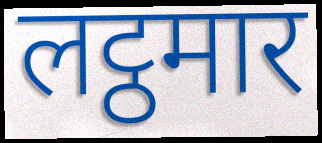
लट्ठमार